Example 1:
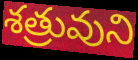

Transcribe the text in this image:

శత్రువుని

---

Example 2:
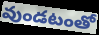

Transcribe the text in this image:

వుండటంతో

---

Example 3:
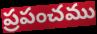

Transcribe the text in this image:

ప్రపంచము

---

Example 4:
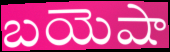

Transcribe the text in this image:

బయెషా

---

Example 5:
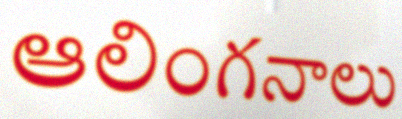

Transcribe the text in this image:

ఆలింగనాలు